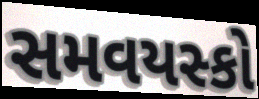
સમવયસ્કો